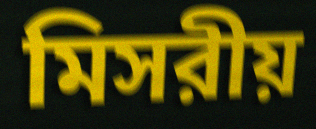
মিসরীয়